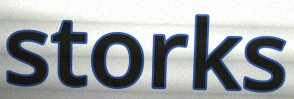
storks